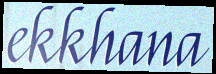
ekkhana